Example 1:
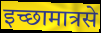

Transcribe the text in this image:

इच्छामात्रसे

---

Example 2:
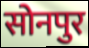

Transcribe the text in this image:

सोनपुर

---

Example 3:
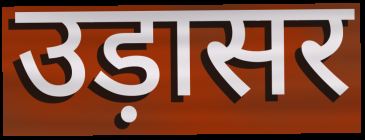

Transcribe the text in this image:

उड़ासर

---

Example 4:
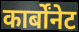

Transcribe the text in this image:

कार्बोंनेट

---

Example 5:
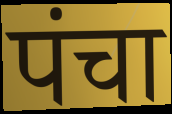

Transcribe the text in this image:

पंचा